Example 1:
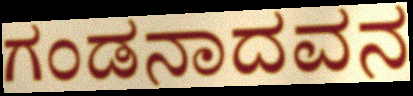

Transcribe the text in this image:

ಗಂಡನಾದವನ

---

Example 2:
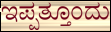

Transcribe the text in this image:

ಇಪ್ಪತ್ತೂಂದು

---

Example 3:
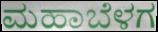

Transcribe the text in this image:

ಮಹಾಬೆಳಗ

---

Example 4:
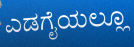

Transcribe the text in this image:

ಎಡಗೈಯಲ್ಲೂ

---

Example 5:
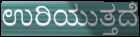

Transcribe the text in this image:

ಉರಿಯುತ್ತದೆ